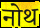
नोथ